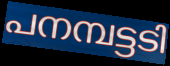
പനമ്പട്ടടി